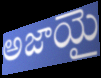
అజాయై